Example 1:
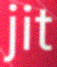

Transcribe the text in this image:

jit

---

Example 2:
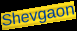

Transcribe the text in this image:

Shevgaon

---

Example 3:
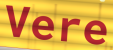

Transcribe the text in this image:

Vere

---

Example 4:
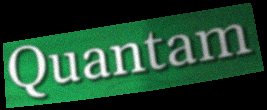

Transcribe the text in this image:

Quantam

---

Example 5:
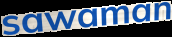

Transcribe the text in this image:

sawaman